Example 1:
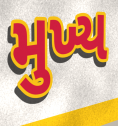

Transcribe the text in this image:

મુખ્ય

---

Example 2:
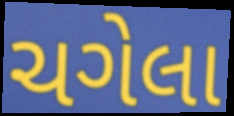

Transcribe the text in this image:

ચગેલા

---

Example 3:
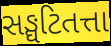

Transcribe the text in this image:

સઙ્ઘટિતત્તા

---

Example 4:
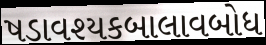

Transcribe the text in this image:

ષડાવશ્યકબાલાવબોધ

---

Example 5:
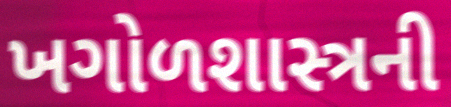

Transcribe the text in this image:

ખગોળશાસ્ત્રની